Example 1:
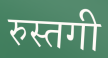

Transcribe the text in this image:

रुस्तगी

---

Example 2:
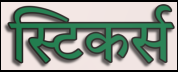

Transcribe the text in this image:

स्टिकर्स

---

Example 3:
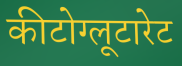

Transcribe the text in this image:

कीटोग्लूटारेट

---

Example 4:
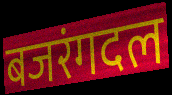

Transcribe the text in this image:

बजरंगदल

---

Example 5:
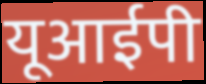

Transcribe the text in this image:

यूआईपी